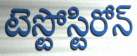
టెస్టోస్టిరోన్